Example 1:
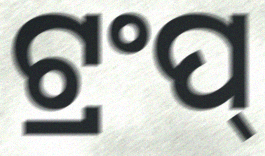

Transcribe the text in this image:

ଟ୍ରଂପ୍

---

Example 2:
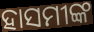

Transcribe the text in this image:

ହାସମୀଙ୍କ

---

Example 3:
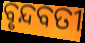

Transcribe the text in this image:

ବୃନ୍ଦବତୀ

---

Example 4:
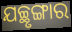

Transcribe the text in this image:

ଯଚ୍ଛୃଙ୍ଗାର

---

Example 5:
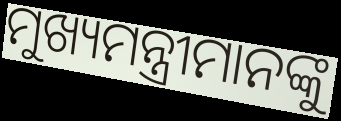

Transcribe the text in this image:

ମୁଖ୍ୟମନ୍ତ୍ରୀମାନଙ୍କୁ